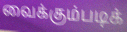
வைக்கும்படிக்